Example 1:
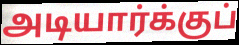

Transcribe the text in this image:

அடியார்க்குப்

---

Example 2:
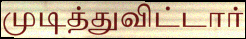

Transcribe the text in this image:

முடித்துவிட்டார்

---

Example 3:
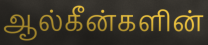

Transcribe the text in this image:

ஆல்கீன்களின்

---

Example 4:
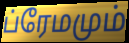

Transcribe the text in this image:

ப்ரேமமும்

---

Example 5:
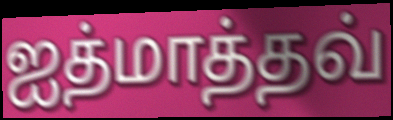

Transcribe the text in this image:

ஐத்மாத்தவ்